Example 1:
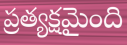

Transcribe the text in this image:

ప్రత్యక్షమైంది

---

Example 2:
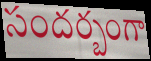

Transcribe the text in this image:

సందర్బంగా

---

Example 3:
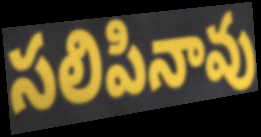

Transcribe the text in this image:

సలిపినావు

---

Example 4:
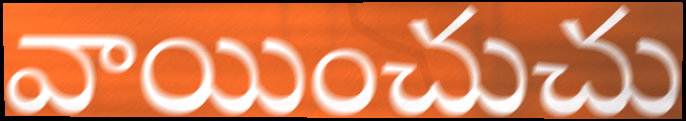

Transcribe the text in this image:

వాయించుచు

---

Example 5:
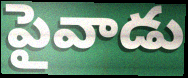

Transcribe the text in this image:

పైవాడు